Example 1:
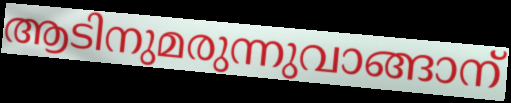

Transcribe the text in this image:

ആടിനുമരുന്നുവാങ്ങാന്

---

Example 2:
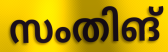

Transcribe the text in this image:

സംതിങ്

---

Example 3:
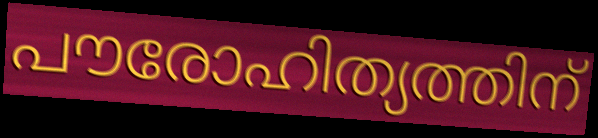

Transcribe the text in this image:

പൗരോഹിത്യത്തിന്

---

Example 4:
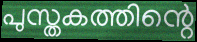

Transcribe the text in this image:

പുസ്തകത്തിന്റെ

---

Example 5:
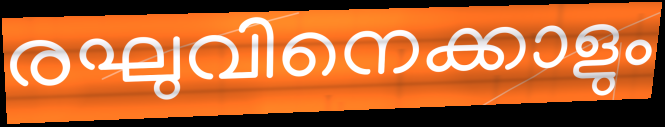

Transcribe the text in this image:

രഘുവിനെക്കാളും